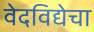
वेदविद्येचा